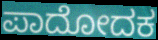
ಪಾದೋದಕ